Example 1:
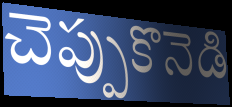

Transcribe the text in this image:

చెప్పుకొనెడి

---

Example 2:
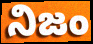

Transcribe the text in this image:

నిజం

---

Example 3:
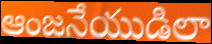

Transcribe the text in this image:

ఆంజనేయుడిలా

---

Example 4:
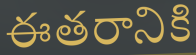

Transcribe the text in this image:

ఈతరానికి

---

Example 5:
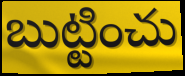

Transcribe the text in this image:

బుట్టించు